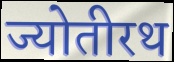
ज्योतीरथ